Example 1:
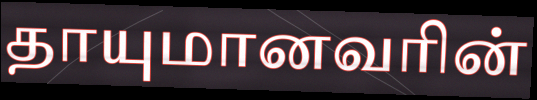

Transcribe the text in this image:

தாயுமானவரின்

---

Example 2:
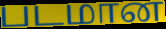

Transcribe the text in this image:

படமான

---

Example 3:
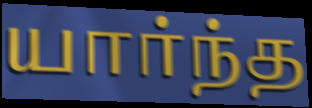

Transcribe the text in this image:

யார்ந்த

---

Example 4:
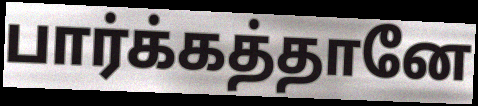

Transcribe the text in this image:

பார்க்கத்தானே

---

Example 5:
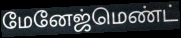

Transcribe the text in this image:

மேனேஜ்மெண்ட்